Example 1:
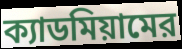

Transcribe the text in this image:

ক্যাডমিয়ামের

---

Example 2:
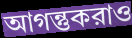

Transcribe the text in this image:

আগন্তুকরাও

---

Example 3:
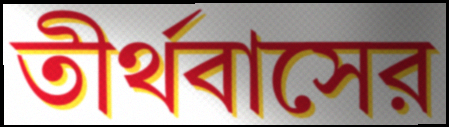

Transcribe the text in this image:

তীর্থবাসের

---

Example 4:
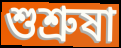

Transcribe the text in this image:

শুশ্রুষা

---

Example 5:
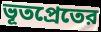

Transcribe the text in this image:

ভূতপ্রেতের